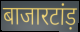
बाजारटांड़